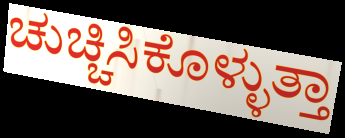
ಚುಚ್ಚಿಸಿಕೊಳ್ಳುತ್ತಾ